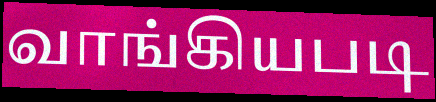
வாங்கியபடி